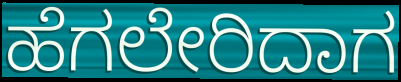
ಹೆಗಲೇರಿದಾಗ